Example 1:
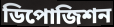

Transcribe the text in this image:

ডিপোজিশন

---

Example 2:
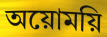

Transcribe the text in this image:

অয়োময়ি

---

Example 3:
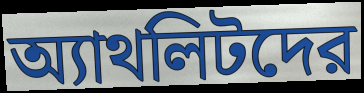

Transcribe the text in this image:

অ্যাথলিটদের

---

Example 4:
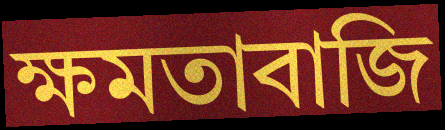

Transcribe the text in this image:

ক্ষমতাবাজি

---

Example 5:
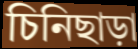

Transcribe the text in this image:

চিনিছাড়া